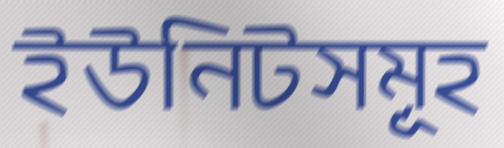
ইউনিটসমূহ